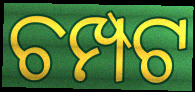
ଚମ୍ପଟ